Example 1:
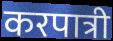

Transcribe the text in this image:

करपात्री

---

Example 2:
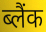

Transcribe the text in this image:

ब्लैंक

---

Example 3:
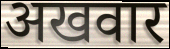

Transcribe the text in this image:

अखवार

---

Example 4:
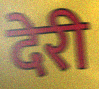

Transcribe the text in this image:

देरी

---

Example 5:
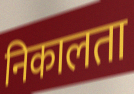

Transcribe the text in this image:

निकालता